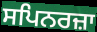
ਸਪਿਨਰਜ਼ਾ